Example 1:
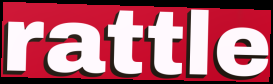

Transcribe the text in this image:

rattle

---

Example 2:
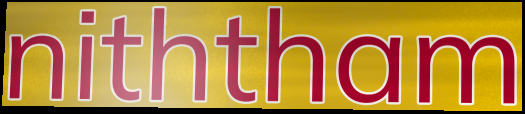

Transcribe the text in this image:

niththam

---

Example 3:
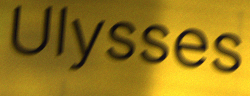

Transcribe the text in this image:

Ulysses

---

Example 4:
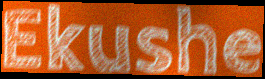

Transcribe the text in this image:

Ekushe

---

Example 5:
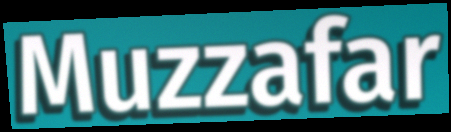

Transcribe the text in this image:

Muzzafar